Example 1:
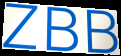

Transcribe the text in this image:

ZBB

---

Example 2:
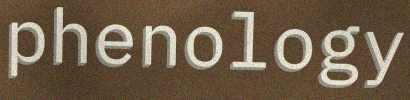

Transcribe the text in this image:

phenology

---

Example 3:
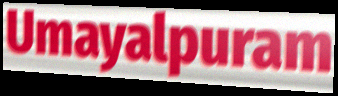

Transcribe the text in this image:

Umayalpuram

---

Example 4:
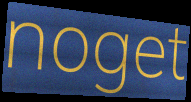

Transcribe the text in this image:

noget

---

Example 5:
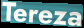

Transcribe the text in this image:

Tereza